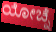
ಯೋಚ್ನೆ